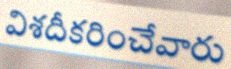
విశదీకరించేవారు